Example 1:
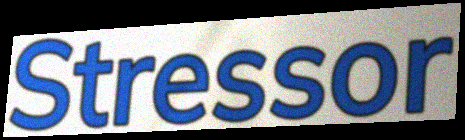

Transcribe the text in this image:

Stressor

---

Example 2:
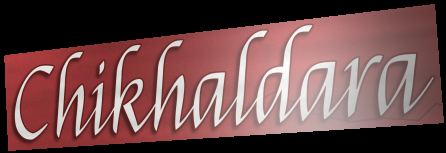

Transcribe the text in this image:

Chikhaldara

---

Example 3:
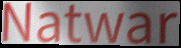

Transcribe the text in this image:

Natwar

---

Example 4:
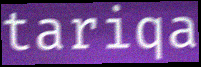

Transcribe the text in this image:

tariqa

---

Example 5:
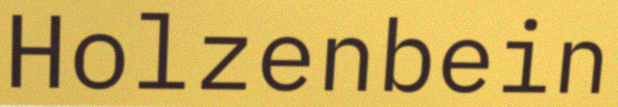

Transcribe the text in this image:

Holzenbein